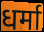
धर्मा